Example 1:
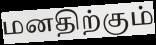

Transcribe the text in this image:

மனதிற்கும்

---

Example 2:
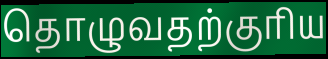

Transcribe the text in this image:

தொழுவதற்குரிய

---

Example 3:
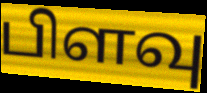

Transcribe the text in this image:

பிளவு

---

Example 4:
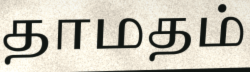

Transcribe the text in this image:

தாமதம்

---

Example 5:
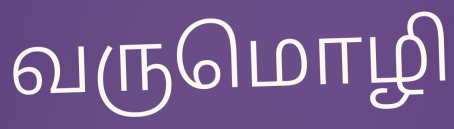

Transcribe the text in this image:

வருமொழி